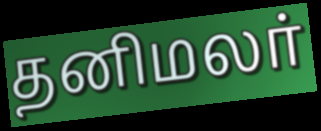
தனிமலர்